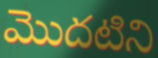
మొదటిని